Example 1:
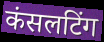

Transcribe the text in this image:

कंसलटिंग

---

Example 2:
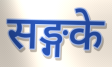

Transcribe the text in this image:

सङ्गके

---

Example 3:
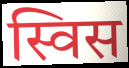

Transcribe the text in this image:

स्विस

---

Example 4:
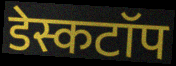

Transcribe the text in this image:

डेस्‍कटॉप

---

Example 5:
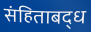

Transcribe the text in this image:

संहिताबद्ध